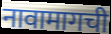
नावामागची